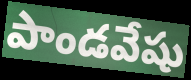
పాండవేషు